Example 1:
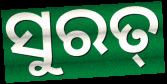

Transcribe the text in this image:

ସୁରତ୍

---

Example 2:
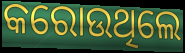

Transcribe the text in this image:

କରୋଉଥିଲେ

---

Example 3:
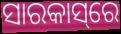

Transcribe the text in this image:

ସାରକାସ୍‌ରେ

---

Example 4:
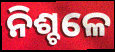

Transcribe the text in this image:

ନିଶ୍ଚଳେ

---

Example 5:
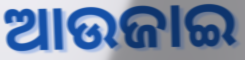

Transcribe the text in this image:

ଆଉଜାଇ